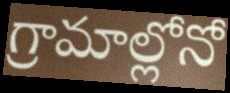
గ్రామాల్లోనో